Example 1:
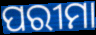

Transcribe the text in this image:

ପରୀମା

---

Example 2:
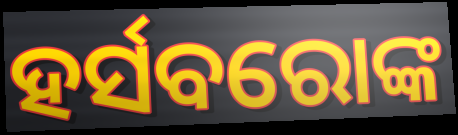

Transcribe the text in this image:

ହର୍ସବରୋଙ୍କ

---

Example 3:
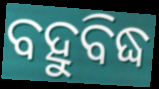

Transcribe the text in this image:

ବହୁବିଦ୍ଧ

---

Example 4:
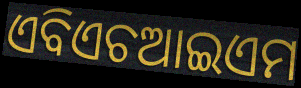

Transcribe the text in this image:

ଏବିଏଚଆଇଏମ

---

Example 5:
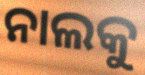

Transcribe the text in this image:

ନାଲକୁ